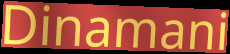
Dinamani